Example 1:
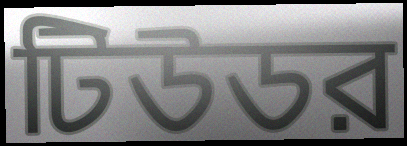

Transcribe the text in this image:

টিউডর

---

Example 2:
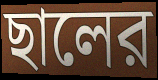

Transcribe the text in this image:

ছালের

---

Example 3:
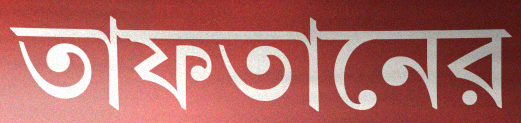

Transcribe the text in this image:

তাফতানের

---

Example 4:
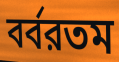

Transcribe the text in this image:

বর্বরতম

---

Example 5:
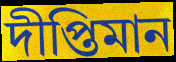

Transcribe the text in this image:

দীপ্তিমান